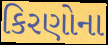
કિરણોના